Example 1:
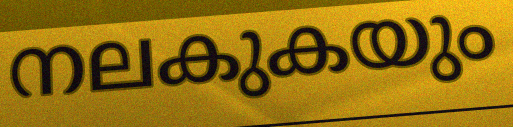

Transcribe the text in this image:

നലകുകയും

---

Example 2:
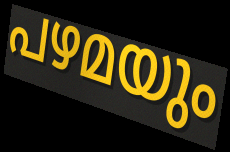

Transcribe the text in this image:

പഴമയും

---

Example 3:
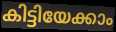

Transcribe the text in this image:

കിട്ടിയേക്കാം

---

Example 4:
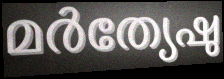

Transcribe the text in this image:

മർത്യേഷു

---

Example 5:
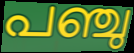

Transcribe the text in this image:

പഞ്ചു